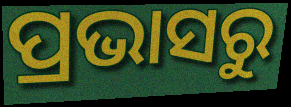
ପ୍ରଭାସରୁ